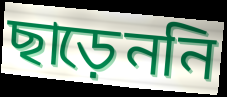
ছাড়েননি